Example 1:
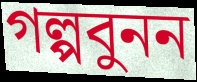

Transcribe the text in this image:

গল্পবুনন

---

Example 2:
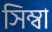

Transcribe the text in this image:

সিম্বা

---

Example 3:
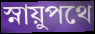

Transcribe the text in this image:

স্নায়ুপথে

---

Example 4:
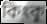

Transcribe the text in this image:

কিংকু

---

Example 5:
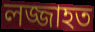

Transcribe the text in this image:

লজ্জাহত